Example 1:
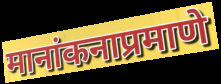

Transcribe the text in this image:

मानांकनाप्रमाणे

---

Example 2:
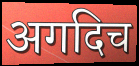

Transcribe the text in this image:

अगदिच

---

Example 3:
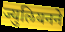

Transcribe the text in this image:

ज्युलियनने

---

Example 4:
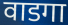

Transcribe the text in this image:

वाडगा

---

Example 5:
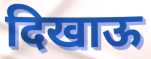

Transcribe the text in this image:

दिखाऊ